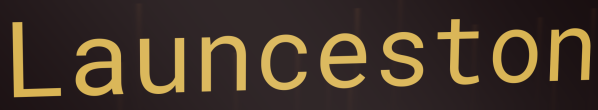
Launceston